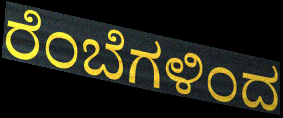
ರೆಂಬೆಗಳಿಂದ